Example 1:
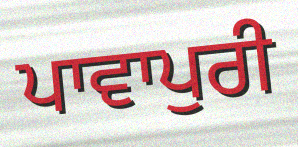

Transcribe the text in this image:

ਪਾਵਾਪੁਰੀ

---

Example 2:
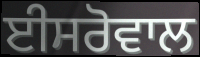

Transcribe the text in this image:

ਈਸਰੋਵਾਲ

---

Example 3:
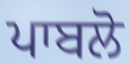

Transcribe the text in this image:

ਪਾਬਲੋ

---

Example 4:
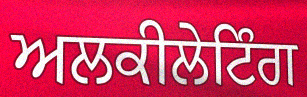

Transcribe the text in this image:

ਅਲਕੀਲੇਟਿੰਗ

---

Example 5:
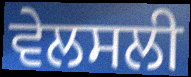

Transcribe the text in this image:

ਵੇਲਸਲੀ